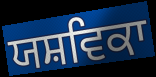
ਯਸ਼ਵਿਕਾ